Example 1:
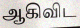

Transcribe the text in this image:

ஆகிவிட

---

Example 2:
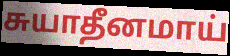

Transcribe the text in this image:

சுயாதீனமாய்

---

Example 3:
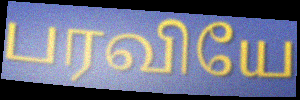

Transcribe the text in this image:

பரவியே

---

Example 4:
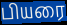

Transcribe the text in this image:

பியரை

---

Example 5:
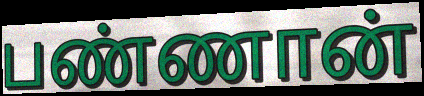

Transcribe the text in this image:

பண்ணான்